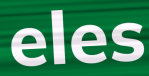
eles